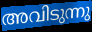
അവിടുന്നു